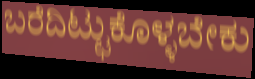
ಬರೆದಿಟ್ಟುಕೊಳ್ಳಬೇಕು